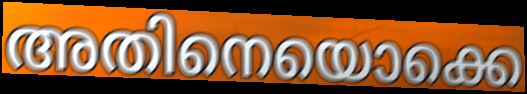
അതിനെയൊക്കെ